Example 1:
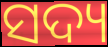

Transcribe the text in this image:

ସଦ୍ୟ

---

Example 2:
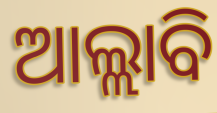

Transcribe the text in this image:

ଆଲ୍ଲାବି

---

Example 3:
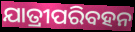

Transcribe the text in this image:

ଯାତ୍ରୀପରିବହନ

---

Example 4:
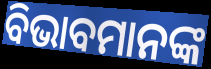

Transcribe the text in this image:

ବିଭାବମାନଙ୍କ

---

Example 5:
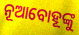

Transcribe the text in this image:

ନୂଆବୋହୂଙ୍କୁ